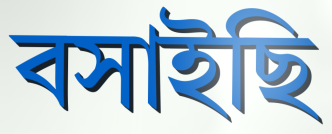
বসাইছি